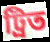
ট্ৰিত